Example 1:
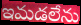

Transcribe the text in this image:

ఇమడలేను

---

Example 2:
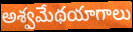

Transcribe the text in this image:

అశ్వమేథయాగాలు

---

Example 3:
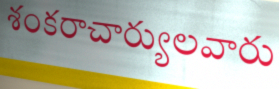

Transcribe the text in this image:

శంకరాచార్యులవారు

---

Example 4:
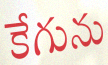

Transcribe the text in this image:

కేగును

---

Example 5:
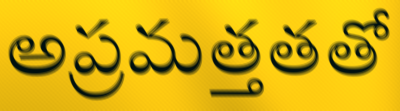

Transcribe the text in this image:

అప్రమత్తతతో